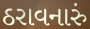
ઠરાવનારું